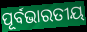
ପୂର୍ବଭାରତୀୟ